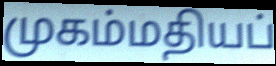
முகம்மதியப்